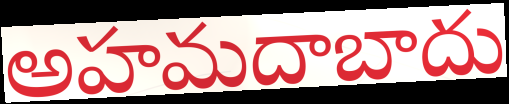
అహమదాబాదు